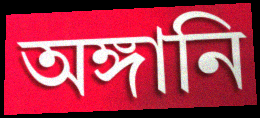
অঙ্গানি